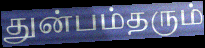
துன்பம்தரும்